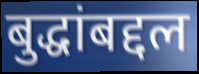
बुद्धांबद्दल